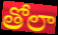
తోలా